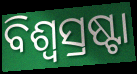
ବିଶ୍ୱସ୍ରଷ୍ଟା